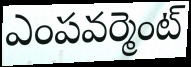
ఎంపవర్మెంట్